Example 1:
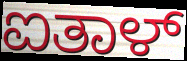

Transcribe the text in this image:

ಐತಾಳ್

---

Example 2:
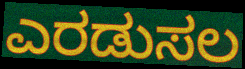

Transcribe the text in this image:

ಎರಡುಸಲ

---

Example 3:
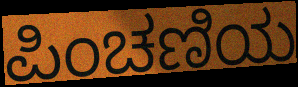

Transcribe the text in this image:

ಪಿಂಚಣಿಯ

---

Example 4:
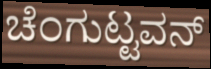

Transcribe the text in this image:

ಚೆಂಗುಟ್ಟವನ್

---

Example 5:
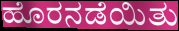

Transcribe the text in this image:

ಹೊರನಡೆಯಿತು